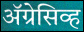
ॲग्रेसिव्ह